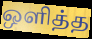
ஒளித்த